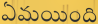
ఏమయింది